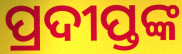
ପ୍ରଦୀପ୍ତଙ୍କ